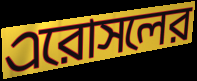
এরোসলের